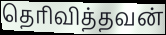
தெரிவித்தவன்